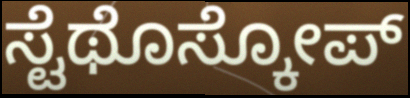
ಸ್ಟೆಥೊಸ್ಕೋಪ್